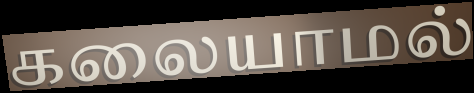
கலையாமல்